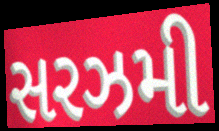
સરઝમી